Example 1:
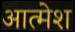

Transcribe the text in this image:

आत्मेश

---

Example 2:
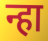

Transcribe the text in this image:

न्हा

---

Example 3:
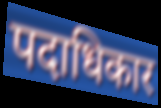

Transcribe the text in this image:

पदाधिकार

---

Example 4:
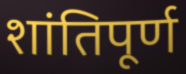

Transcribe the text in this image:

शांतिपूर्ण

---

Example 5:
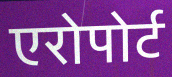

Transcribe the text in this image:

एरोपोर्ट